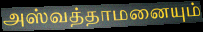
அஸ்வத்தாமனையும்